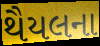
થૈયલના